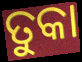
ତୁକା